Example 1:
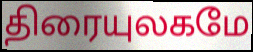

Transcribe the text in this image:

திரையுலகமே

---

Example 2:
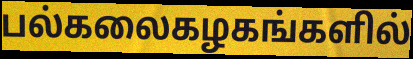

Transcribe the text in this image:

பல்கலைகழகங்களில்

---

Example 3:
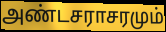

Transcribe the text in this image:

அண்டசராசரமும்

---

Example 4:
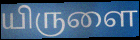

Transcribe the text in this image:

யிருளை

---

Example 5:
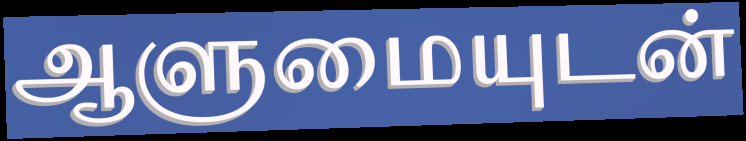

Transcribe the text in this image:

ஆளுமையுடன்